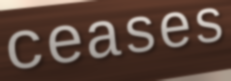
ceases